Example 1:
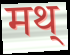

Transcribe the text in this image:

मथ्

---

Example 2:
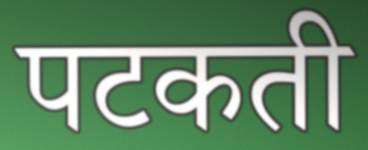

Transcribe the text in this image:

पटकती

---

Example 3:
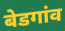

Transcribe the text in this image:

बेडगांव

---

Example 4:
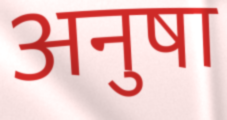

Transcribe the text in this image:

अनुषा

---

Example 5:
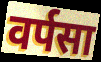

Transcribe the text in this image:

वर्पसा